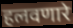
हलवणारे